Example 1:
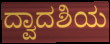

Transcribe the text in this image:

ದ್ವಾದಶಿಯ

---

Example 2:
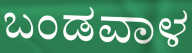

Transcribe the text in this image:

ಬಂಡವಾಳ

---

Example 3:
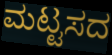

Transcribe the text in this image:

ಮಟ್ಟಸದ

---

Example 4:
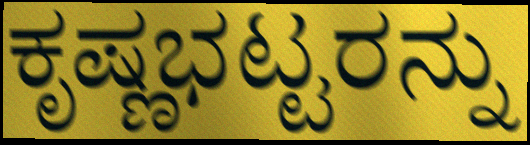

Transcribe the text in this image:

ಕೃಷ್ಣಭಟ್ಟರನ್ನು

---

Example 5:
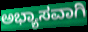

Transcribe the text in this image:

ಅಭ್ಯಾಸವಾಗಿ